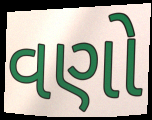
વણો